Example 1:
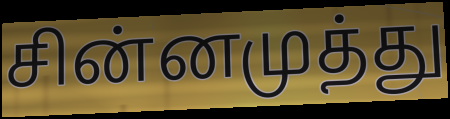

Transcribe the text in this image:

சின்னமுத்து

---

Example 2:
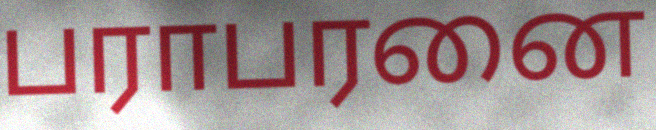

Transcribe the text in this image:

பராபரனை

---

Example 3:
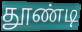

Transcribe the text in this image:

தூண்டி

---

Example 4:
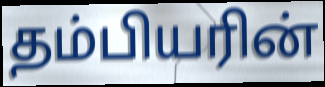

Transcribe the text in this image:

தம்பியரின்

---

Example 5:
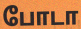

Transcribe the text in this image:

போடா